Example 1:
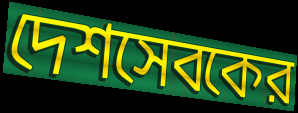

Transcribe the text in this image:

দেশসেবকের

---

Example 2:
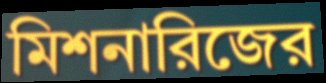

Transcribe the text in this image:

মিশনারিজের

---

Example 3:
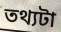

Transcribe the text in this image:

তথ্যটা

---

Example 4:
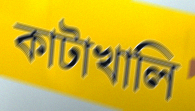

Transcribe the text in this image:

কাটাখালি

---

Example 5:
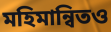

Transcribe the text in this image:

মহিমান্বিতও